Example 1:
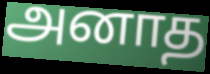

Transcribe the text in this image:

அனாத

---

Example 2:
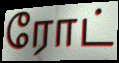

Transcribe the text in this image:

ரோட்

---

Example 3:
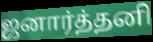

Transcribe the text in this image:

ஜனார்த்தனி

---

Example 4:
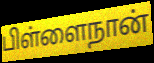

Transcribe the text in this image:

பிள்ளைநான்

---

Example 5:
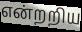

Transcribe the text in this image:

என்றறிய